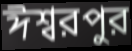
ঈশ্বরপুর